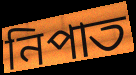
নিপাত